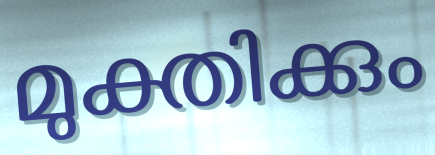
മുക്തിക്കും